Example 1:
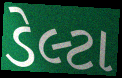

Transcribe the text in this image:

ડેલ્ટા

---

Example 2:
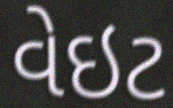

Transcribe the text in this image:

વેઇટ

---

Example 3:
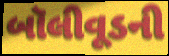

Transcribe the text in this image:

બૉલીવૂડની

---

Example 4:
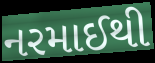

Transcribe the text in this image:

નરમાઈથી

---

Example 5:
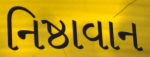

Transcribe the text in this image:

નિષ્ઠાવાન